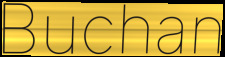
Buchan